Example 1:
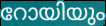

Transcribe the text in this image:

റോയിയും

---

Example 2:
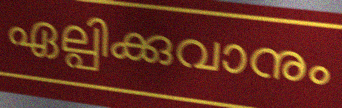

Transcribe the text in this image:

ഏല്പിക്കുവാനും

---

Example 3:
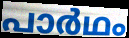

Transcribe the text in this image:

പാർഥം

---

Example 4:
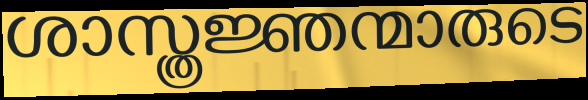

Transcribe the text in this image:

ശാസ്ത്രജ്ഞന്മാരുടെ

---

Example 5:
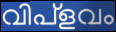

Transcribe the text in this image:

വിപ്ളവം